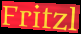
Fritzl